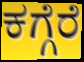
ಕಗ್ಗೆರೆ